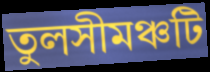
তুলসীমঞ্চটি